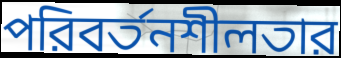
পরিবর্তনশীলতার